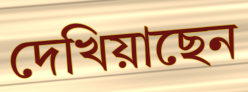
দেখিয়াছেন